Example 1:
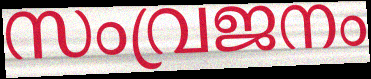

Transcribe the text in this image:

സംവ്രജനം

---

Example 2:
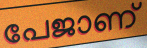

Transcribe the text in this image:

പേജാണ്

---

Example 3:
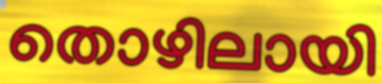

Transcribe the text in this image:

തൊഴിലായി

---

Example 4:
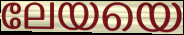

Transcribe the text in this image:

ലേയയെ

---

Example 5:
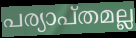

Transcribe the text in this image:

പര്യാപ്തമല്ല